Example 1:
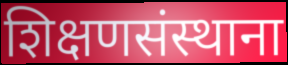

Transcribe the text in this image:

शिक्षणसंस्थाना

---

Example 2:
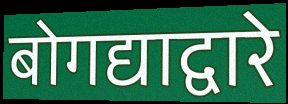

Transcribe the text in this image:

बोगद्याद्वारे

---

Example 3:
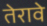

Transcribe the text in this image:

तेरावे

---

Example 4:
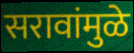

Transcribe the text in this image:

सरावांमुळे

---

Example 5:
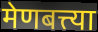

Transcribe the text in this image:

मेणबत्त्या